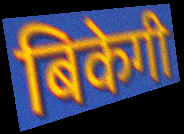
बिकेगी